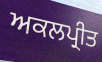
ਅਕਲਪ੍ਰੀਤ